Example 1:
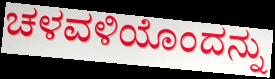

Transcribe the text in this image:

ಚಳವಳಿಯೊಂದನ್ನು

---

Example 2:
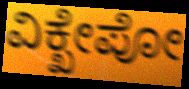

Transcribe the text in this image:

ವಿಕ್ಖೇಪೋ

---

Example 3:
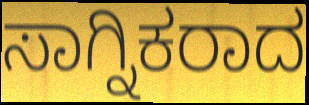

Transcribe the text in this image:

ಸಾಗ್ನಿಕರಾದ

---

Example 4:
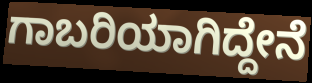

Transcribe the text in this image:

ಗಾಬರಿಯಾಗಿದ್ದೇನೆ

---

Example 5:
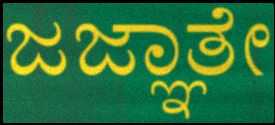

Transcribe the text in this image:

ಜಜ್ಞಾತೇ